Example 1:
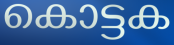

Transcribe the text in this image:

കൊട്ടക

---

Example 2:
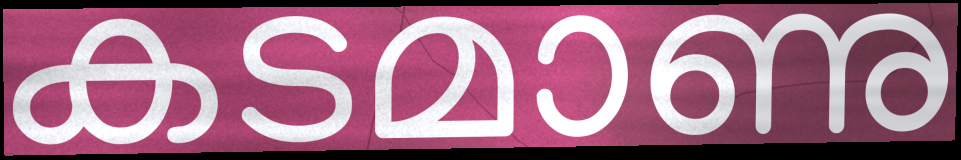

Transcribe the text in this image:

കടമാണു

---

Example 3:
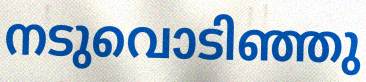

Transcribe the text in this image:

നടുവൊടിഞ്ഞു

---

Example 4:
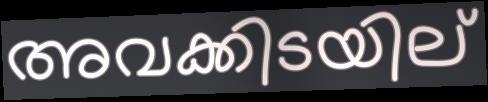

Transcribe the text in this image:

അവക്കിടയില്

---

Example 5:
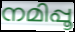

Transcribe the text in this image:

നമിപ്പൂ